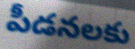
పీడనలకు